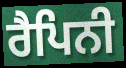
ਰੈਪਿਨੀ